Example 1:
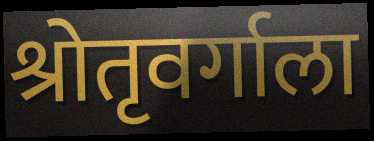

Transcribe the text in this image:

श्रोतृवर्गाला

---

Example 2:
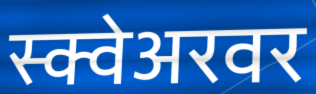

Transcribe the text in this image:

स्क्वेअरवर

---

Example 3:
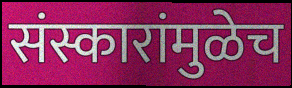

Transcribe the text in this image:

संस्कारांमुळेच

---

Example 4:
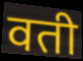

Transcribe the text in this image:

वती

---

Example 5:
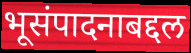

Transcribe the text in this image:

भूसंपादनाबद्दल